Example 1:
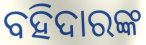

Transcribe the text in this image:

ବହିଦାରଙ୍କ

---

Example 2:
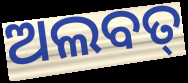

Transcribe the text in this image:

ଅଲବତ୍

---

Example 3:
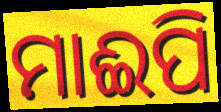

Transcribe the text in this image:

ମାଈପି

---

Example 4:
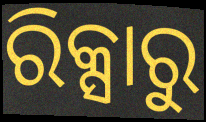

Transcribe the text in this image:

ରିକ୍ସାରୁ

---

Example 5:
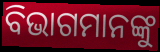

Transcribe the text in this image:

ବିଭାଗମାନଙ୍କୁ